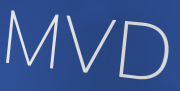
MVD